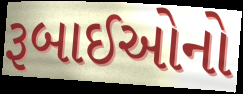
રૂબાઈઓનો